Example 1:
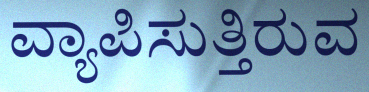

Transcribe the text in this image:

ವ್ಯಾಪಿಸುತ್ತಿರುವ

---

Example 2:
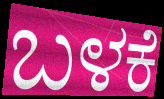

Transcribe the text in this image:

ಬಳಕೆ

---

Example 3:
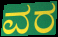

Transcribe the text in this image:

ವರ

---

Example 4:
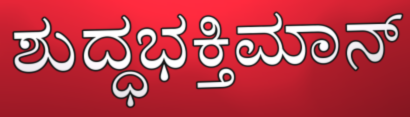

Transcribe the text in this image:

ಶುದ್ಧಭಕ್ತಿಮಾನ್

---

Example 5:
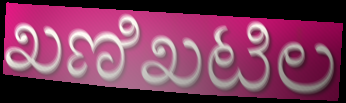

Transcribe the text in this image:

ಖಣಿಖಟಿಲ